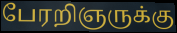
பேரறிஞருக்கு